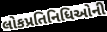
લોકપ્રતિનિધિઓની